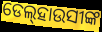
ଡେଲ୍‌ହାଉସୀଙ୍କ